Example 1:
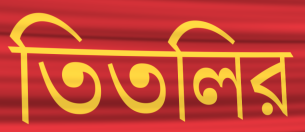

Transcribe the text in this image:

তিতলির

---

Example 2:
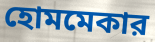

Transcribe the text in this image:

হোমমেকার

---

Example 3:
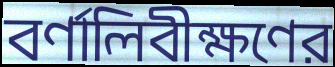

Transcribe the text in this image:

বর্ণালিবীক্ষণের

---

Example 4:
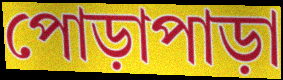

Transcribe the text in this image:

পোড়াপাড়া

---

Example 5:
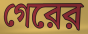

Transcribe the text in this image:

গেরের